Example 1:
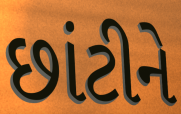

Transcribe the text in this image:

છાંટીને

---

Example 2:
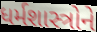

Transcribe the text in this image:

ધર્મશાસ્ત્રોને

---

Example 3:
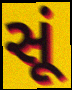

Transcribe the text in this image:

સૂં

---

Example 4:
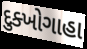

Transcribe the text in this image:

દુક્ખોગાહા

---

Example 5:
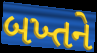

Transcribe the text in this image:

બખ્તને